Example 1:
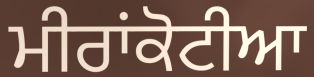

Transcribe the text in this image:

ਮੀਰਾਂਕੋਟੀਆ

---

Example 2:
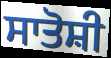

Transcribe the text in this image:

ਸਾਤੋਸ਼ੀ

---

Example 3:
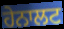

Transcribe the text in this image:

ਹੇਨਾਲਟ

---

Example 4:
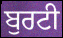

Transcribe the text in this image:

ਬੁਰਟੀ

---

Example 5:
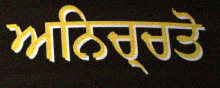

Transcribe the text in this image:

ਅਨਿਚ੍ਚਤੋ